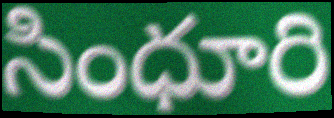
సింధూరి